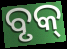
ବୃକ୍